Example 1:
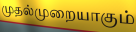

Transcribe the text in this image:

முதல்முறையாகும்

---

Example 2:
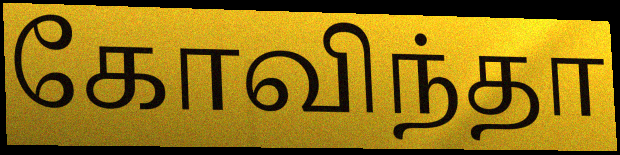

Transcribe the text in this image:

கோவிந்தா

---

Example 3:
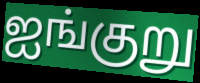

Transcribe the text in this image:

ஐங்குறு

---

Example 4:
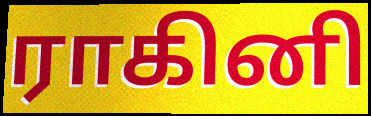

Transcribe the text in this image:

ராகினி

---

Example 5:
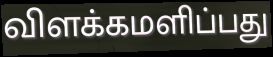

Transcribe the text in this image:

விளக்கமளிப்பது